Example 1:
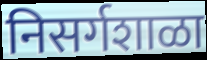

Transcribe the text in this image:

निसर्गशाळा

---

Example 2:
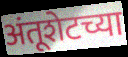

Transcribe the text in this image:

अंतूशेटच्या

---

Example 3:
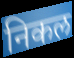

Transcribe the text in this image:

निकल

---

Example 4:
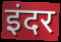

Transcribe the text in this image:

इंदर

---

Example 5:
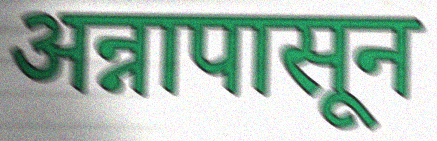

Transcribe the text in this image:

अन्नापासून